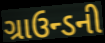
ગ્રાઉન્ડની